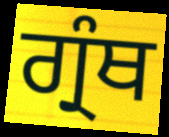
ਗ੍ਰੰਥ